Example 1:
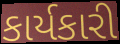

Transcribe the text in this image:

કાર્યકારી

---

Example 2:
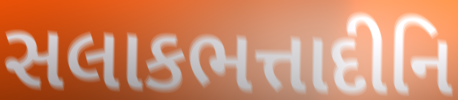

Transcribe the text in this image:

સલાકભત્તાદીનિ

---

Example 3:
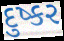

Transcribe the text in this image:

દુષ્કર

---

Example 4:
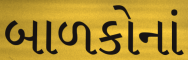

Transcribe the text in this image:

બાળકોનાં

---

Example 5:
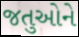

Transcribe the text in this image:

જતુઓને